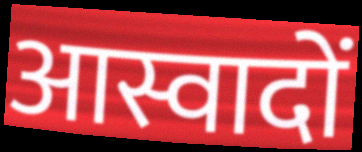
आस्वादों